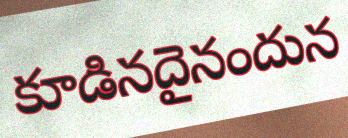
కూడినదైనందున